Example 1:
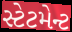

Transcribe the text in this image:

સ્ટેટમેન્ટ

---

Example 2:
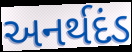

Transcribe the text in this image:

અનર્થદંડ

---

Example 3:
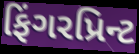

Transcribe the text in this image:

ફિંગરપ્રિન્ટ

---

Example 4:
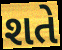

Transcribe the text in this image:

શતે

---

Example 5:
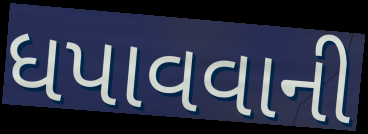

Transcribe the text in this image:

ધપાવવાની